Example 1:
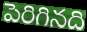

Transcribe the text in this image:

పెరిగినది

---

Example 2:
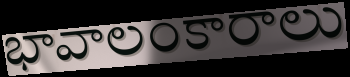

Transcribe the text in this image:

భావాలంకారాలు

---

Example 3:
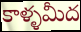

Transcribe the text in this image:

కాళ్ళమీద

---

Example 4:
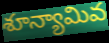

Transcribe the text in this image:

శూన్యామివ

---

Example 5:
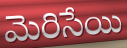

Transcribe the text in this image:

మెరిసేయి